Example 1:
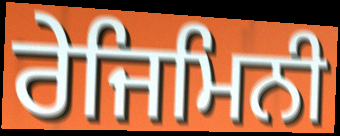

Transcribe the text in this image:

ਰੇਜਿਮਿਨੀ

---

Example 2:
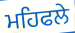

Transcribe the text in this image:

ਮਹਿਫਲੇ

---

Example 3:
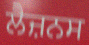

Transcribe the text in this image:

ਲੈਜ਼ਨਸ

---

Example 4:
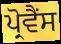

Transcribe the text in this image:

ਪ੍ਰੋਵੈਂਸ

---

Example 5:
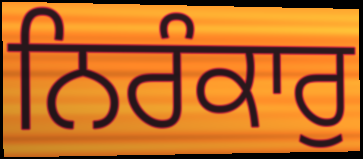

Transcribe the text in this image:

ਨਿਰੰਕਾਰੁ